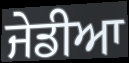
ਜੇਡੀਆ